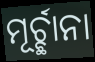
ମୂର୍ଚ୍ଛାନା